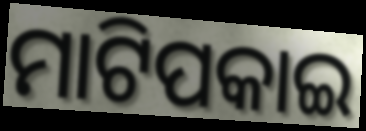
ମାଟିପକାଇ